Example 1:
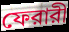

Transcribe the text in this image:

ফেরারী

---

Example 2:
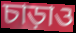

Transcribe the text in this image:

চাড়াও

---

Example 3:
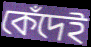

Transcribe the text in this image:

কেঁদেই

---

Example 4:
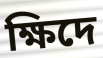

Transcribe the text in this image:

ক্ষিদে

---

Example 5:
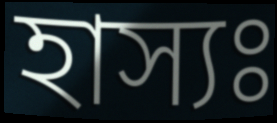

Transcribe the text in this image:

হাস্যঃ